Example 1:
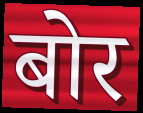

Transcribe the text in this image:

बोर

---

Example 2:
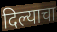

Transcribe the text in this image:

दिल्याचा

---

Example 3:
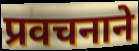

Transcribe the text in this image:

प्रवचनाने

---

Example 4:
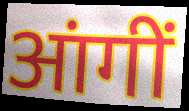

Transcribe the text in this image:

आंगीं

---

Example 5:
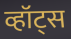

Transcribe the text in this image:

व्हॉट्स